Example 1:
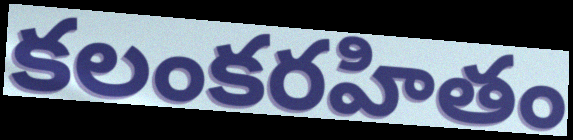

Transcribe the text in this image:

కలంకరహితం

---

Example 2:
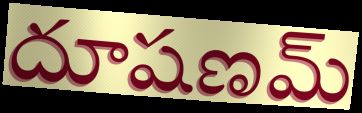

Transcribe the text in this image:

దూషణమ్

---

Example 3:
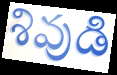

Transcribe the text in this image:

శివుడి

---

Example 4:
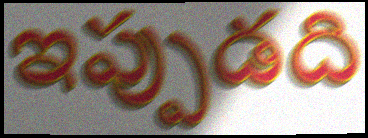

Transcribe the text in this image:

ఇప్పుడది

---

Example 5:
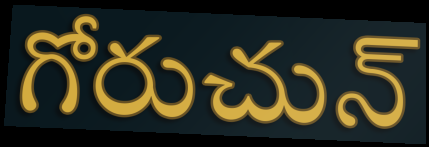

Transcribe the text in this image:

గోరుచున్